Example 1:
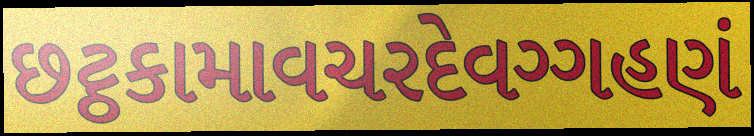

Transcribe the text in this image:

છટ્ઠકામાવચરદેવગ્ગહણં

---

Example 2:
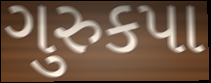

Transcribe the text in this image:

ગુરુકપા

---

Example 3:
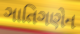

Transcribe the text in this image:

ઞાતિગણેન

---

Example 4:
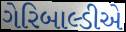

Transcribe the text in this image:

ગેરિબાલ્ડીએ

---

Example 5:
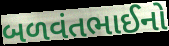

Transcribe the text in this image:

બળવંતભાઈનો